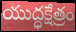
యుద్ధక్షేత్రం